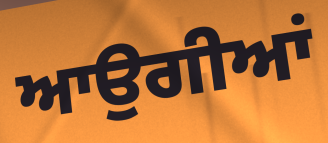
ਆਉਗੀਆਂ